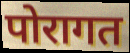
पोरागत